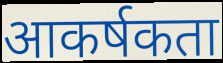
आकर्षकता